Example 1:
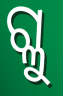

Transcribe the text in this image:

ଗ୍ଳୁ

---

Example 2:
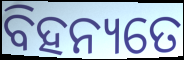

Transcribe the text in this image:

ବିହନ୍ୟତେ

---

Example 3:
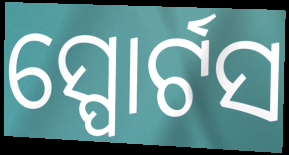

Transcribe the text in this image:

ସ୍ପୋର୍ଟସ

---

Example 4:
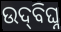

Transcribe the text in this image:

ଉଦ୍‌ବିଘ୍ନ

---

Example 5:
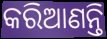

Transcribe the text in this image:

କରିଆଣନ୍ତି